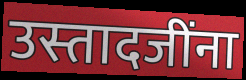
उस्तादजींना